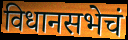
विधानसभेचं